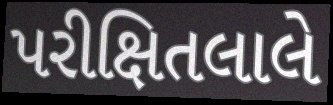
પરીક્ષિતલાલે